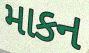
માકન